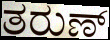
ತರುಣ್